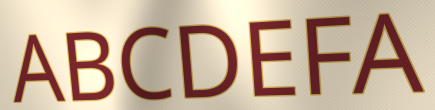
ABCDEFA